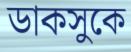
ডাকসুকে